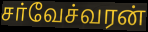
சர்வேச்வரன்